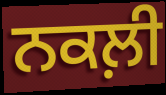
ਨਕਲ਼ੀ